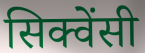
सिक्वेंसी